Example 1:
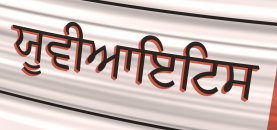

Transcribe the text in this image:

ਯੂਵੀਆਇਟਿਸ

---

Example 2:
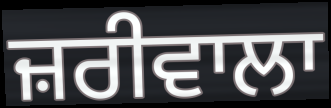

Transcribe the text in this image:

ਜ਼ਰੀਵਾਲਾ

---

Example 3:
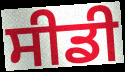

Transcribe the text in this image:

ਸੀਡੀ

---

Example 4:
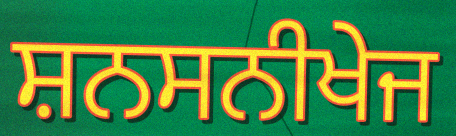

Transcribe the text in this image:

ਸ਼ਨਸਨੀਖੇਜ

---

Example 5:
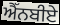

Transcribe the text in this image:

ਐੱਨਬੀਏ